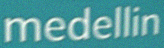
medellin